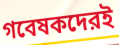
গবেষকদেরই